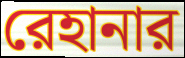
রেহানার